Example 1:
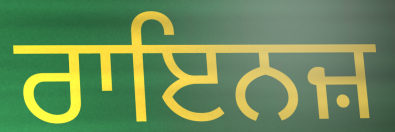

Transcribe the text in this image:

ਰਾਇਨਜ਼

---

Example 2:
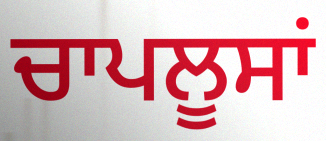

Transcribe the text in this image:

ਚਾਪਲੂਸਾਂ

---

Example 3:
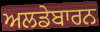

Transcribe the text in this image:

ਅਲਡੇਬਾਰਨ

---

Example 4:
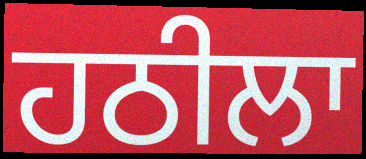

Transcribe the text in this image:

ਹਠੀਲਾ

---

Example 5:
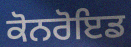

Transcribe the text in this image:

ਕੋਨਰੋਇਡ